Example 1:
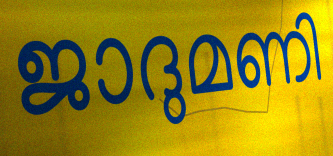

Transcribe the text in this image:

ജാദുമണി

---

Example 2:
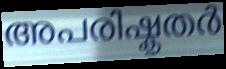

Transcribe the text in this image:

അപരിഷ്കൃതർ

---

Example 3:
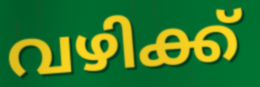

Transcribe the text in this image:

വഴിക്ക്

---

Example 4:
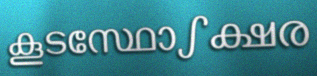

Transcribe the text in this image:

കൂടസ്ഥോഽക്ഷര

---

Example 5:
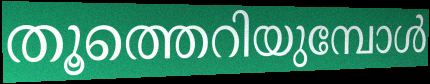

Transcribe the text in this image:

തൂത്തെറിയുമ്പോൾ